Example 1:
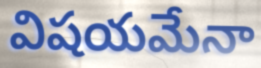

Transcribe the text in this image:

విషయమేనా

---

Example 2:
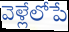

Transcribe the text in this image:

వెళ్లేలోపే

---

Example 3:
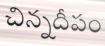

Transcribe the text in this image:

చిన్నదీపం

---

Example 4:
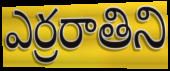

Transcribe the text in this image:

ఎర్రరాతిని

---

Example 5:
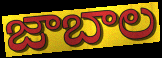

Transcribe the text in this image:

జాబాల